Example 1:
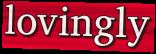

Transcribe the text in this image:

lovingly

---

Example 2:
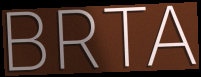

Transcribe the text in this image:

BRTA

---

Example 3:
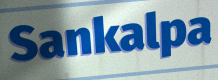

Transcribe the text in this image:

Sankalpa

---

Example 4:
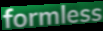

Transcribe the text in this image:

formless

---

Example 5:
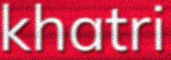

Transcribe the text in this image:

khatri